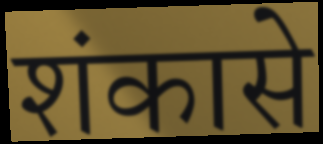
शंकासे